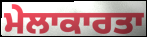
ਮੇਲਾਕਾਰਤਾ